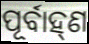
ପୂର୍ବାହ୍‌ଣ